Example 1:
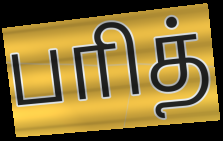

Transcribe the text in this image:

பரித்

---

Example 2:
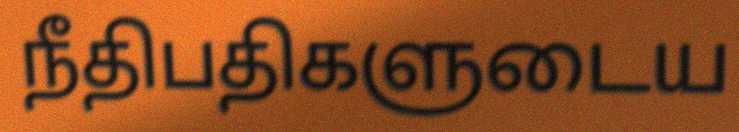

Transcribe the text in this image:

நீதிபதிகளுடைய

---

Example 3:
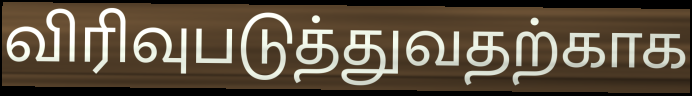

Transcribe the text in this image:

விரிவுபடுத்துவதற்காக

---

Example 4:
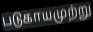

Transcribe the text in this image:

படுகாயமுற்று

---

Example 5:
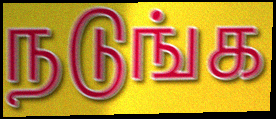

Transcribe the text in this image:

நடுங்க